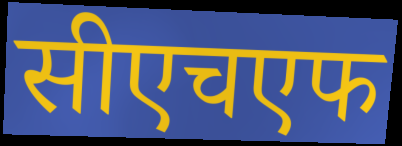
सीएचएफ